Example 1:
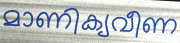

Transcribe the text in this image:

മാണിക്യവീണ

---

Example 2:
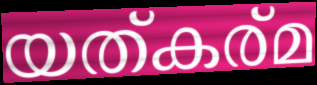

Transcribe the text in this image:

യത്കര്മ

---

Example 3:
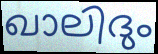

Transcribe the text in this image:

ഖാലിദും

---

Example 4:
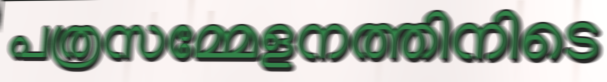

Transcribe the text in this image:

പത്രസമ്മേളനത്തിനിടെ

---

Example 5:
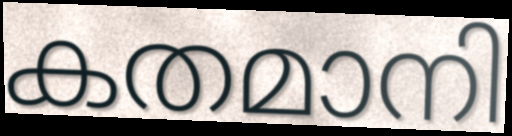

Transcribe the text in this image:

കതമാനി